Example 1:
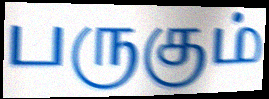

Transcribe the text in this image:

பருகும்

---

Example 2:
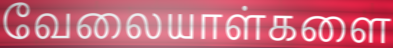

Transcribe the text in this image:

வேலையாள்களை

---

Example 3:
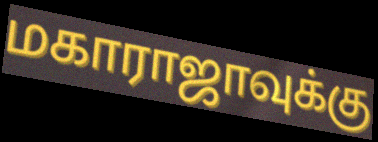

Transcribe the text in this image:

மகாராஜாவுக்கு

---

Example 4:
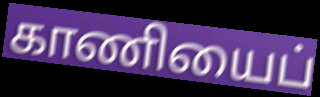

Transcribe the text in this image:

காணியைப்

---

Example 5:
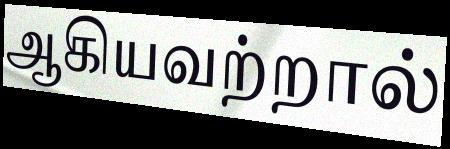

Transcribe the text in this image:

ஆகியவற்றால்